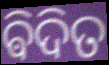
ଵିଦିତ